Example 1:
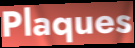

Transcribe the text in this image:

Plaques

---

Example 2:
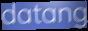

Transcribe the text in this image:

datang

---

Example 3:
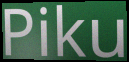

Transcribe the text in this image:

Piku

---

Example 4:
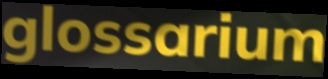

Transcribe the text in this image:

glossarium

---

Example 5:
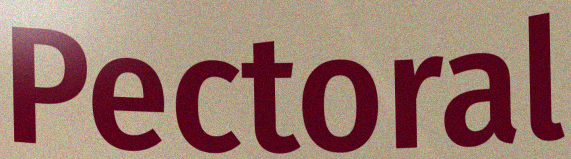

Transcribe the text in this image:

Pectoral